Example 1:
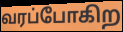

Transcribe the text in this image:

வரப்போகிற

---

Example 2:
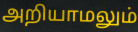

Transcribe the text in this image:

அறியாமலும்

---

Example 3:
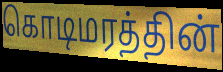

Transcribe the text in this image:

கொடிமரத்தின்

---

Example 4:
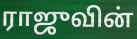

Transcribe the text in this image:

ராஜுவின்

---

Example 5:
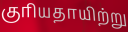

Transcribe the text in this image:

குரியதாயிற்று